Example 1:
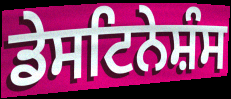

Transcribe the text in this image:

ਡੇਸਟਿਨੇਸ਼ੰਸ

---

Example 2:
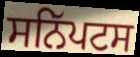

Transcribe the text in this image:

ਸਨਿੱਪਟਸ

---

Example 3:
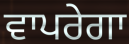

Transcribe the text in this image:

ਵਾਪਰੇਗਾ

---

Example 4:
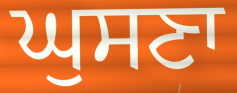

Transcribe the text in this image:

ਘੁਸਣਾ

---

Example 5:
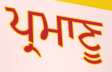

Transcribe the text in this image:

ਪ੍ਰਮਾਣੂ